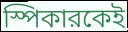
স্পিকারকেই